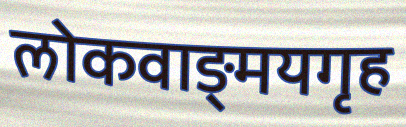
लोकवाङ्मयगृह